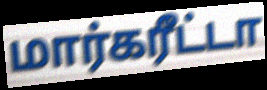
மார்கரீட்டா